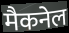
मैकनेल